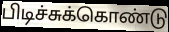
பிடிச்சுக்கொண்டு